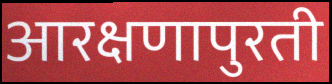
आरक्षणापुरती